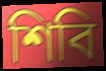
শিবি